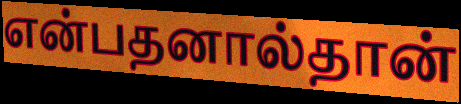
என்பதனால்தான்